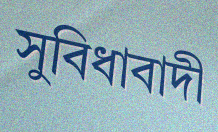
সুবিধাবাদী